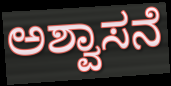
ಅಶ್ವಾಸನೆ